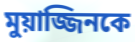
মুয়াজ্জিনকে